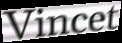
Vincet